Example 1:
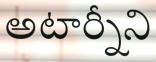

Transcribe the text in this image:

అటార్నీని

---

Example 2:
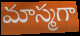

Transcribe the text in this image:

మాస్మగా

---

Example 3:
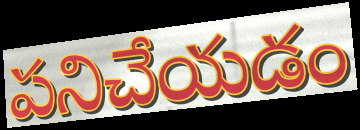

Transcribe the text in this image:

పనిచేయడం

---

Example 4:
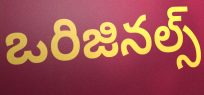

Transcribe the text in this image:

ఒరిజినల్స్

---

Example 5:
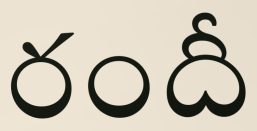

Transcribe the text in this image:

రందీ